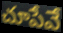
చూపేవే